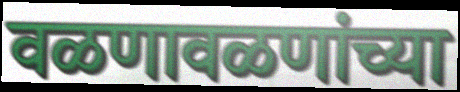
वळणावळणांच्या